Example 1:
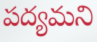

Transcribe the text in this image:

పద్యమని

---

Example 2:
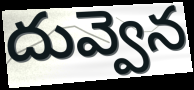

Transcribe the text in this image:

దువ్వెన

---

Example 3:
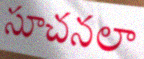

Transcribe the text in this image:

సూచనలా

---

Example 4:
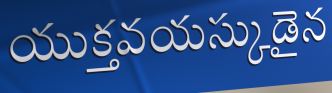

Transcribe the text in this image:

యుక్తవయస్కుడైన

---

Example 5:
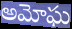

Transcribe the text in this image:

అమోఘ